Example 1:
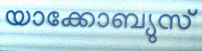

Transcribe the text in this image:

യാക്കോബ്യുസ്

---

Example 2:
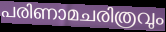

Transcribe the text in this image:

പരിണാമചരിത്രവും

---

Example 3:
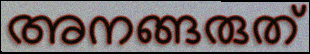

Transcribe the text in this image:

അനങ്ങരുത്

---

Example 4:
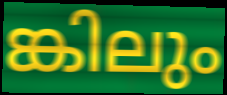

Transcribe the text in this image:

ങ്കിലും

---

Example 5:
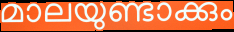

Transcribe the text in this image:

മാലയുണ്ടാക്കും